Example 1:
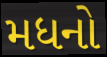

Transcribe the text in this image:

મધનો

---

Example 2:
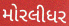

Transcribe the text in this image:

મોરલીધર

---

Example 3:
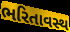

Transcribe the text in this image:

ભરિતાવસ્થ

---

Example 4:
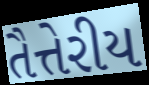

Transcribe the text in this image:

તૈત્તેરીય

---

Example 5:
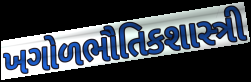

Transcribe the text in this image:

ખગોળભૌતિકશાસ્ત્રી